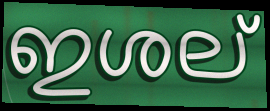
ഇശല്